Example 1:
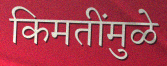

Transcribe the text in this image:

किमतींमुळे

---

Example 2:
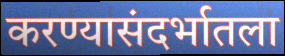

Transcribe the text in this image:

करण्यासंदर्भातला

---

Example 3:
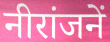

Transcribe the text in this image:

नीरांजनें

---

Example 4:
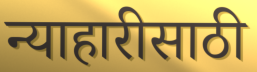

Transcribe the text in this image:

न्याहारीसाठी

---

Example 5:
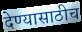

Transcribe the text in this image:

देण्यासाठीच